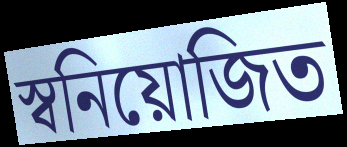
স্বনিয়োজিত